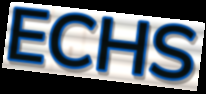
ECHS